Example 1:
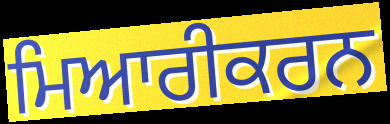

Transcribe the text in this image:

ਮਿਆਰੀਕਰਨ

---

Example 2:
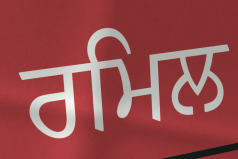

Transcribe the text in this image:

ਰਮਿਲ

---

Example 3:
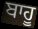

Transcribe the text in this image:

ਬਾਹੂ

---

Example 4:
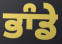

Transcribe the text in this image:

ਭਾੰਡੇ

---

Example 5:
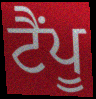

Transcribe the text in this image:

ਟੈਂਪੂ